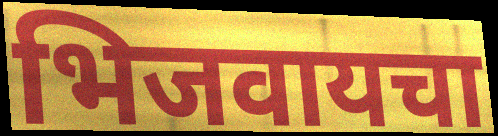
भिजवायचा